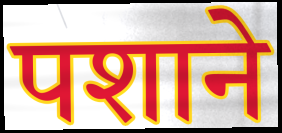
पशाने